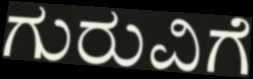
ಗುರುವಿಗೆ